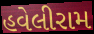
હવેલીરામ